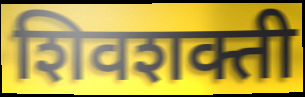
शिवशक्ती